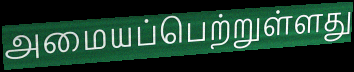
அமையப்பெற்றுள்ளது